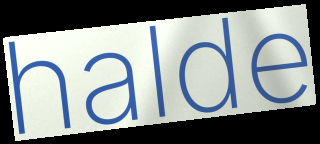
halde